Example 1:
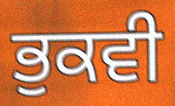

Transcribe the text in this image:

ਭੁਕਵੀ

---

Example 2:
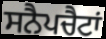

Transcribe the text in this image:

ਸਨੈਪਚੈਟਾਂ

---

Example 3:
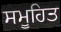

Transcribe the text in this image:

ਸਮੂਹਿਤ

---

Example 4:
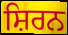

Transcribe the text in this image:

ਸ਼ਿਰਨ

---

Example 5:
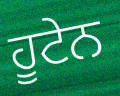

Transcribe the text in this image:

ਹੂਟੇਨ